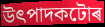
উৎপাদকটোৰ